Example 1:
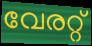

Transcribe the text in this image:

വേരറ്റ്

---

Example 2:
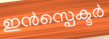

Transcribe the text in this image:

ഇൻസ്പെക്ടർ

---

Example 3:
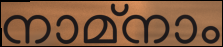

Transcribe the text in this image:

നാമ്നാം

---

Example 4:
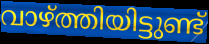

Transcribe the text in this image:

വാഴ്ത്തിയിട്ടുണ്ട്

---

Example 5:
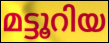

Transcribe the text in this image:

മട്ടൂറിയ